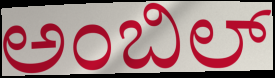
ಅಂಬಿಲ್